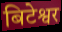
बिटेश्वर